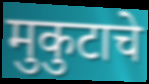
मुकुटाचे